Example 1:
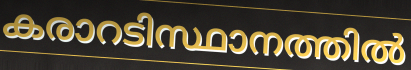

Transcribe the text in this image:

കരാറടിസ്ഥാനത്തിൽ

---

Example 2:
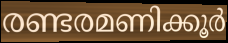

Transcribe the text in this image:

രണ്ടരമണിക്കൂർ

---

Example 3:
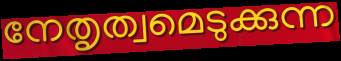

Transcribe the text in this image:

നേതൃത്വമെടുക്കുന്ന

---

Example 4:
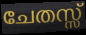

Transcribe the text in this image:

ചേതസ്സ്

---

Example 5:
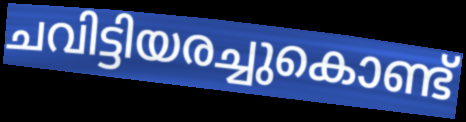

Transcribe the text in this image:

ചവിട്ടിയരച്ചുകൊണ്ട്